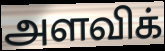
அளவிக்